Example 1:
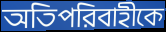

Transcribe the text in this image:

অতিপরিবাহীকে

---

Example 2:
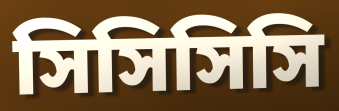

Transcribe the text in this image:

সিসিসিসি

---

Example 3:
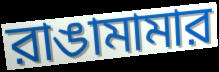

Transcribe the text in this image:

রাঙামামার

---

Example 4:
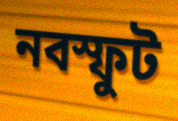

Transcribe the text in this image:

নবস্ফুট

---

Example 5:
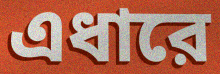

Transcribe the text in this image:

এধারে